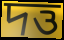
দত্ত